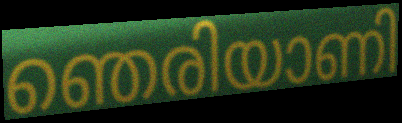
ഞെരിയാണി